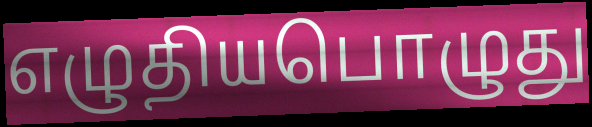
எழுதியபொழுது